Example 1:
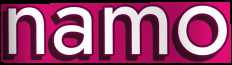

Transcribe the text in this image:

namo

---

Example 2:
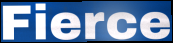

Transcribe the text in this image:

Fierce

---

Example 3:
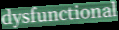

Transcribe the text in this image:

dysfunctional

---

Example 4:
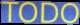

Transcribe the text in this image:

TODO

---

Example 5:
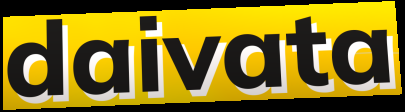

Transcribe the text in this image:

daivata